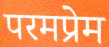
परमप्रेम